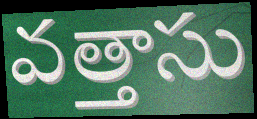
వత్తాసు